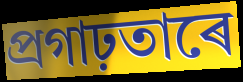
প্ৰগাঢ়তাৰে